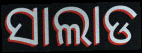
ସାଲାଡ